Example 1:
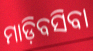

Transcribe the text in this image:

ମାଡ଼ିବସିବା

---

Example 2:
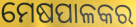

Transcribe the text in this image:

ମେଷପାଳକର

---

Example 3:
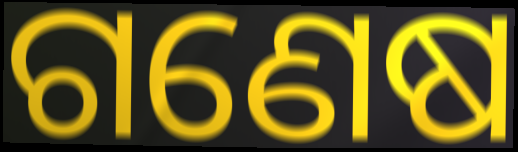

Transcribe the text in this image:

ଗଣେଷ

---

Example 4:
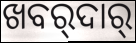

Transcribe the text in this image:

ଖବର୍‍ଦାର୍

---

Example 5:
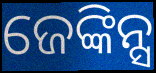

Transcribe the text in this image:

ଜେଙ୍କିନ୍ସ